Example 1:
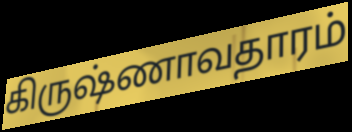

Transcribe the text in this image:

கிருஷ்ணாவதாரம்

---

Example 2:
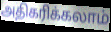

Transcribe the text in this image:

அதிகரிக்கலாம்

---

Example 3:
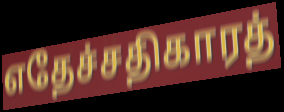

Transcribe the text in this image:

எதேச்சதிகாரத்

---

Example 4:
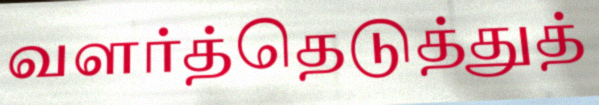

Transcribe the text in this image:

வளர்த்தெடுத்துத்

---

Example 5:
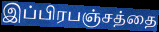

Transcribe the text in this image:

இப்பிரபஞ்சத்தை